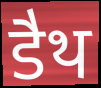
डैथ